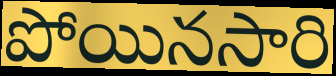
పోయినసారి